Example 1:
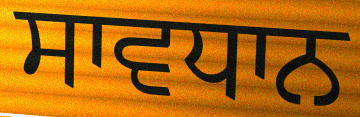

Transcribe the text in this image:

ਸਾਵਧਾਨ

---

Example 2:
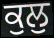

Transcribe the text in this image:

ਕੁਲੁ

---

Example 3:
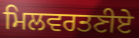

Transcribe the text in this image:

ਮਿਲਵਰਤਣੀਏ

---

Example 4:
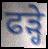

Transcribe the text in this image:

ਫੜ੍ਹੇ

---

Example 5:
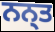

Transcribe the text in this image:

ਨਨ੍ਤ